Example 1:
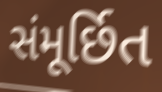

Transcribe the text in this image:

સંમૂર્છિત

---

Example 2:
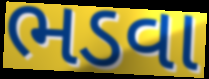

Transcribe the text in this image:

ભડવા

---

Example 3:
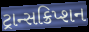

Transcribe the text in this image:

ટ્રાન્સક્રિપ્શન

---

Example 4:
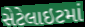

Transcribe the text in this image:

સેટેલાઇટમાં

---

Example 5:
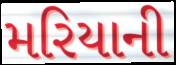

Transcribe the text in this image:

મરિયાની